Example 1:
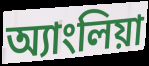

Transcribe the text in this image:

অ্যাংলিয়া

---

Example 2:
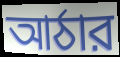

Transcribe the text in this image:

আঠার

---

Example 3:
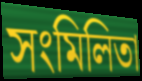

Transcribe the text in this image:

সংমিলিতা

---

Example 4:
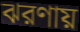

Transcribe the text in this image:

ঝরণায়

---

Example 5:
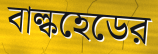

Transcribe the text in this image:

বাল্কহেডের